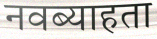
नवब्याहता